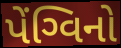
પેંગ્વિનો